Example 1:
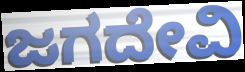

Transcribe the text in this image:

ಜಗದೇವಿ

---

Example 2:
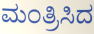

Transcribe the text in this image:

ಮಂತ್ರಿಸಿದ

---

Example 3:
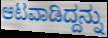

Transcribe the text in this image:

ಆಟವಾಡಿದ್ದನ್ನು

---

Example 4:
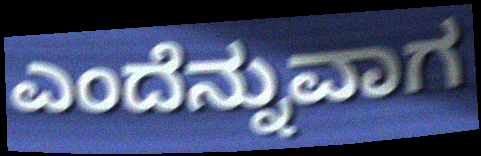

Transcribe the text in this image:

ಎಂದೆನ್ನುವಾಗ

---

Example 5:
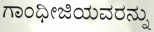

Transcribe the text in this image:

ಗಾಂಧೀಜಿಯವರನ್ನು